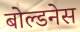
बोल्डनेस